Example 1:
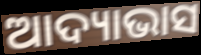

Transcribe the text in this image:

ଆଦ୍ୟାଭାସ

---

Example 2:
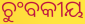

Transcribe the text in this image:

ଚୁଂବକୀୟ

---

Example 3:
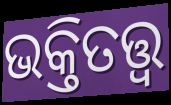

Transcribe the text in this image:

ଭକ୍ତିତତ୍ତ୍ୱ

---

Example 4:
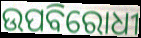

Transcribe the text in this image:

ଉପବିରୋଧୀ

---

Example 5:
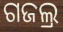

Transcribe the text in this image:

ଗଜଲ୍ର